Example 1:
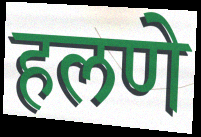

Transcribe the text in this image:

हलणे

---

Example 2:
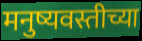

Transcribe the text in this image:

मनुष्यवस्तीच्या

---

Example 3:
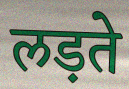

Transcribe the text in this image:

लड़ते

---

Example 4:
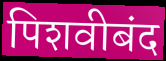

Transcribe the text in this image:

पिशवीबंद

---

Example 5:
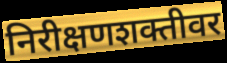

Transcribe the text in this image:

निरीक्षणशक्तीवर